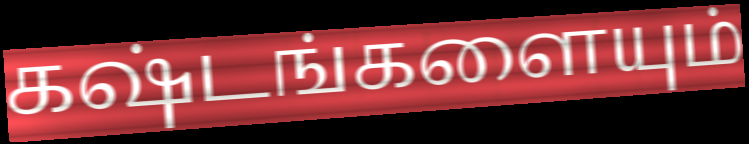
கஷ்டங்களையும்